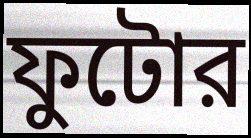
ফুটোর